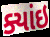
ક્યાંઇ